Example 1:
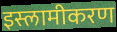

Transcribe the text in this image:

इस्लामीकरण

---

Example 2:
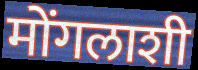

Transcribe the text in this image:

मोंगलाशी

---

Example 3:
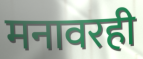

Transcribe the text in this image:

मनावरही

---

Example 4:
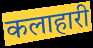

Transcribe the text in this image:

कलाहारी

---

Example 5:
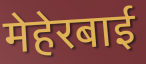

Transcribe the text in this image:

मेहेरबाई